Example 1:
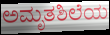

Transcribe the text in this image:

ಅಮೃತಶಿಲೆಯ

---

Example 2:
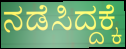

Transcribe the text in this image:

ನಡೆಸಿದ್ದಕ್ಕೆ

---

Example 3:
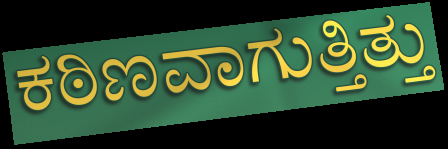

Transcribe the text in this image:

ಕಠಿಣವಾಗುತ್ತಿತ್ತು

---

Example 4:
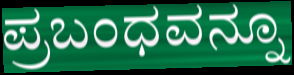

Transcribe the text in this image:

ಪ್ರಬಂಧವನ್ನೂ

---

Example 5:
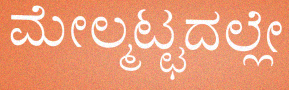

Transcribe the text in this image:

ಮೇಲ್ಮಟ್ಟದಲ್ಲೇ